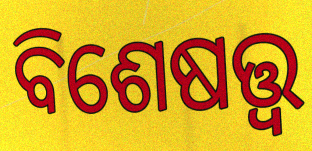
ବିଶେଷତ୍ତ୍ୱ